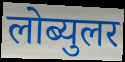
लोब्युलर